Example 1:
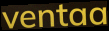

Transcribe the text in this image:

ventaa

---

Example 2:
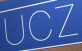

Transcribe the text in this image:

UCZ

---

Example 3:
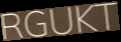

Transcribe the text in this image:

RGUKT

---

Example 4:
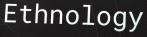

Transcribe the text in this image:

Ethnology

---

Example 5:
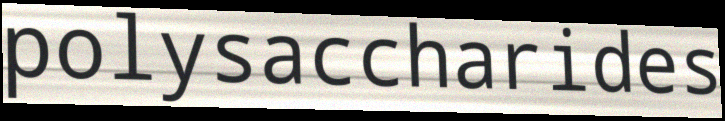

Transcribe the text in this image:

polysaccharides